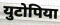
युटोपिया